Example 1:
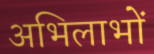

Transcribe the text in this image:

अभिलाभों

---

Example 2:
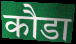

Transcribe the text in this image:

कौडा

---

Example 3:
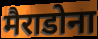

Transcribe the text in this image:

मैराडोना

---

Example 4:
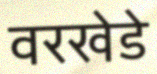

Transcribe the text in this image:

वरखेडे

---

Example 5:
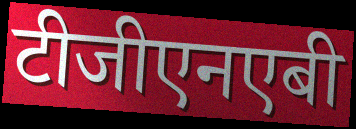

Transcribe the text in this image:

टीजीएनएबी